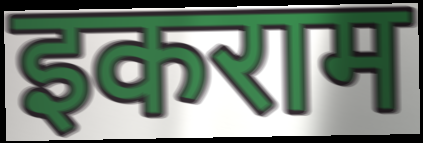
इकराम